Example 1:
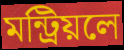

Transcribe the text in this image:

মন্ট্রিয়লে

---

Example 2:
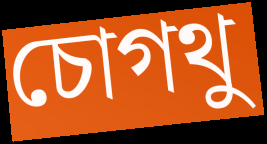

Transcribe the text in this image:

চোগথু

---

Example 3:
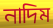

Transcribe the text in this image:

নাদিম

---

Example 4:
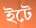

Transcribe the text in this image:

ইটে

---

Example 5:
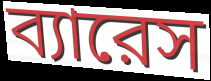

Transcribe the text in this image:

ব্যারেস